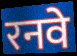
रनवे